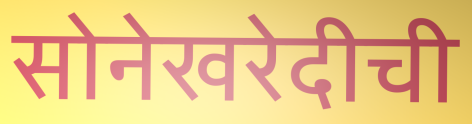
सोनेखरेदीची